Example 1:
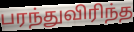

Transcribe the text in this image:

பரந்துவிரிந்த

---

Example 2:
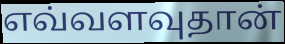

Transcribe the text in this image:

எவ்வளவுதான்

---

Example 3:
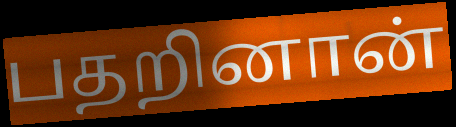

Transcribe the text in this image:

பதறினான்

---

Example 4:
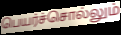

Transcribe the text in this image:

பெயர்ச்சொல்லும்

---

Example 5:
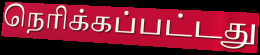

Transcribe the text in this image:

நெரிக்கப்பட்டது